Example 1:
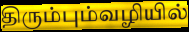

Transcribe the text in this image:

திரும்பும்வழியில்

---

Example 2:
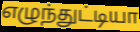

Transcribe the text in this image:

எழுந்துட்டியா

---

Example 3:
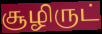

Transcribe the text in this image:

சூழிருட்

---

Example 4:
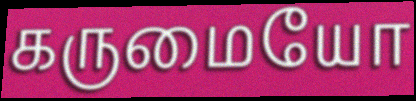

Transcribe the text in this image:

கருமையோ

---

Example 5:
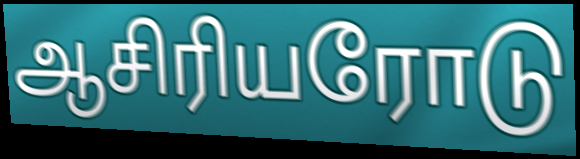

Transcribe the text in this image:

ஆசிரியரோடு